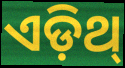
ଏଡ଼ିଥ୍